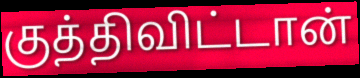
குத்திவிட்டான்